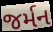
જર્મન